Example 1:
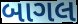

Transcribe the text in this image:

બાગલ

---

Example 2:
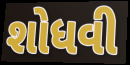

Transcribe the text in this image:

શોધવી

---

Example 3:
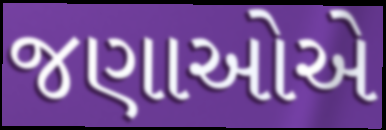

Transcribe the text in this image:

જણાઓએ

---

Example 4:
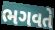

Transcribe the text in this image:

ભગવતે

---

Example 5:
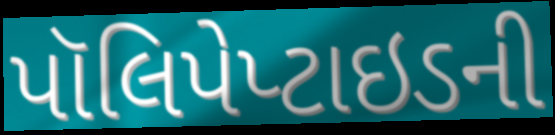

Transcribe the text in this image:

પૉલિપેપ્ટાઇડની